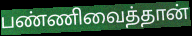
பண்ணிவைத்தான்